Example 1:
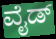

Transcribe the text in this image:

ವೈಡ್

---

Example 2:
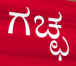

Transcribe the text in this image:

ಗಚ್ಛ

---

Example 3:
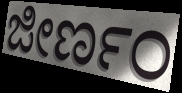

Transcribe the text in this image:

ಜೀರ್ಣಂ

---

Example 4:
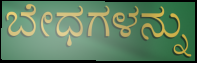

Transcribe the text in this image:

ಬೇಧಗಳನ್ನು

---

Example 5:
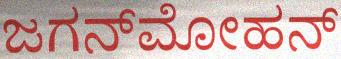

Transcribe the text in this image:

ಜಗನ್‌ಮೋಹನ್